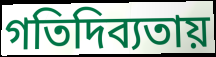
গতিদিব্যতায়